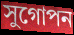
সুগোপন